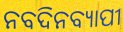
ନବଦିନବ୍ୟାପୀ